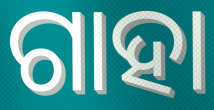
ଗାହା